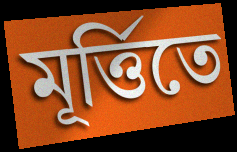
মূর্ত্তিতে